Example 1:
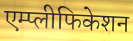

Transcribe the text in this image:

एम्प्लीफिकेशन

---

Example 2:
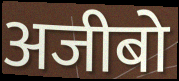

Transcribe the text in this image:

अजीबो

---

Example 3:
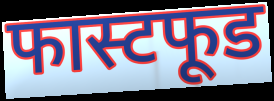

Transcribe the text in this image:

फास्टफूड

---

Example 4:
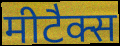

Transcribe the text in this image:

मीटैक्स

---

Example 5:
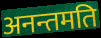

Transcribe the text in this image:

अनन्तमति